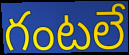
గంటలే